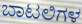
ಬಾಟಲಿಗಳ